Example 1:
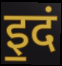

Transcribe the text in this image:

इ॒दं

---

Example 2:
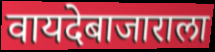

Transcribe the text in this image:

वायदेबाजाराला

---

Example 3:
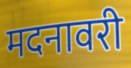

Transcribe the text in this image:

मदनावरी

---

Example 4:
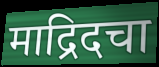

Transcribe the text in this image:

माद्रिदचा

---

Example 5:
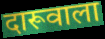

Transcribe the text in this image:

दारूवाला